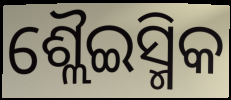
ଶ୍ଲୈଇସ୍ମିକ